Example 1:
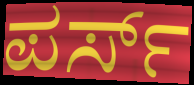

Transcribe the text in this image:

ಪರ್ಸ್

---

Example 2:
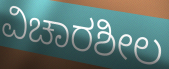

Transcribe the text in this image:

ವಿಚಾರಶೀಲ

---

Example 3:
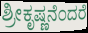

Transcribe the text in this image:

ಶ್ರೀಕೃಷ್ಣನೆಂದರೆ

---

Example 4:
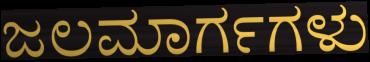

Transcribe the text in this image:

ಜಲಮಾರ್ಗಗಳು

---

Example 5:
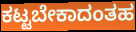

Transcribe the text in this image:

ಕಟ್ಟಬೇಕಾದಂತಹ